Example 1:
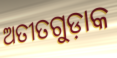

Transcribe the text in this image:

ଅତୀତଗୁଡ଼ାକ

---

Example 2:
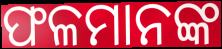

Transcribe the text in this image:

ଫଳମାନଙ୍କ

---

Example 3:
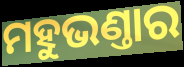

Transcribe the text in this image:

ମହୁଭଣ୍ତାର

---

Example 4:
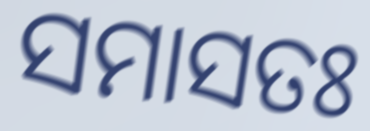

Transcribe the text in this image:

ସମାସତଃ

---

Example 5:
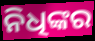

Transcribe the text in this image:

ନିଧିଙ୍କର